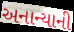
અનાન્યાની